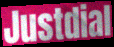
Justdial